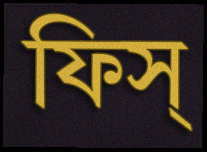
ফিস্